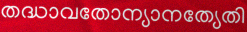
തദ്ധാവതോന്യാനത്യേതി